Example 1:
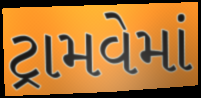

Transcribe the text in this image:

ટ્રામવેમાં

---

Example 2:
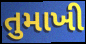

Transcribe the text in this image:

તુમાખી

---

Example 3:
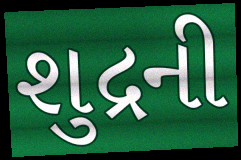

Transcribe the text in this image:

શુદ્રની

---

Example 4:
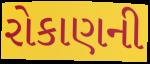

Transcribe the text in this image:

રોકાણની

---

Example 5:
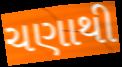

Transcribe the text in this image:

ચણાથી